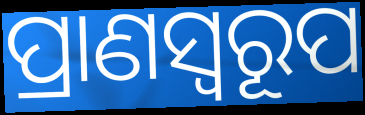
ପ୍ରାଣସ୍ୱରୂପ